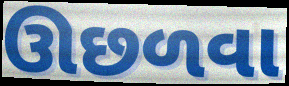
ઊછળવા